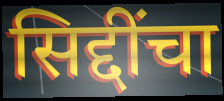
सिद्दींचा